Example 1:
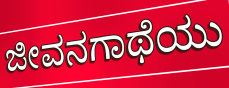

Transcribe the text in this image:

ಜೀವನಗಾಥೆಯು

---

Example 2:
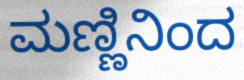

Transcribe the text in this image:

ಮಣ್ಣಿನಿಂದ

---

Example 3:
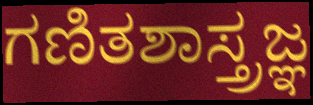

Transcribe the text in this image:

ಗಣಿತಶಾಸ್ತ್ರಜ್ಞ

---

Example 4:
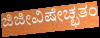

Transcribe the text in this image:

ಜಿಜೀವಿಷೇಚ್ಛತಂ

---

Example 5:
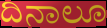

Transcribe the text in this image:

ದಿನಾಲೂ